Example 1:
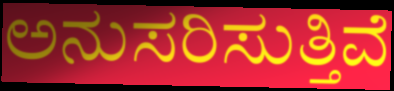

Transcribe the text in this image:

ಅನುಸರಿಸುತ್ತಿವೆ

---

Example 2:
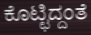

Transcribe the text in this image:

ಕೊಟ್ಟಿದ್ದಂತೆ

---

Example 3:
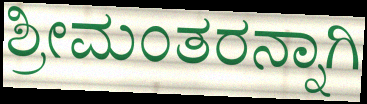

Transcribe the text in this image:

ಶ್ರೀಮಂತರನ್ನಾಗಿ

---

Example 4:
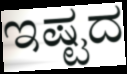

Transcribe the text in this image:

ಇಷ್ಟದ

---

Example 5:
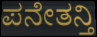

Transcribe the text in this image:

ಪನೇತನ್ತಿ